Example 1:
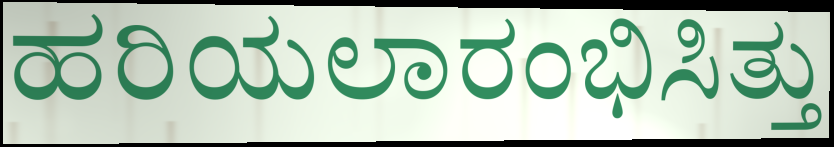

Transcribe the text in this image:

ಹರಿಯಲಾರಂಭಿಸಿತ್ತು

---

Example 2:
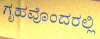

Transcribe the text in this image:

ಗೃಹವೊಂದರಲ್ಲಿ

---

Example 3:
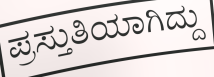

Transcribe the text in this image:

ಪ್ರಸ್ತುತಿಯಾಗಿದ್ದು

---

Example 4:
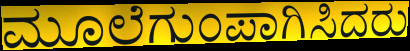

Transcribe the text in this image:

ಮೂಲೆಗುಂಪಾಗಿಸಿದರು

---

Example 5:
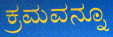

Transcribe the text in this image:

ಕ್ರಮವನ್ನೂ